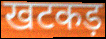
खटकड़